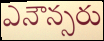
ఎనౌన్సరు